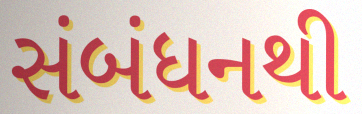
સંબંધનથી